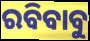
ରବିବାବୁ